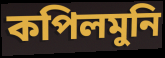
কপিলমুনি